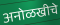
अनोळखीचे